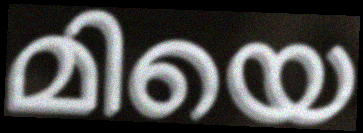
മിയെ